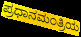
ಪ್ರಧಾನಮಂತ್ರಿಯ